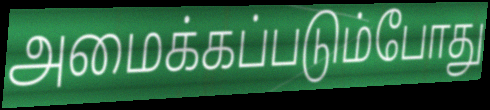
அமைக்கப்படும்போது